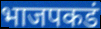
भाजपकडं